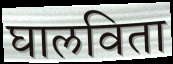
घालविता